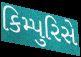
કિમ્પુરિસે